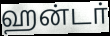
ஹன்டர்